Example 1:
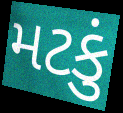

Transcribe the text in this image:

મટકું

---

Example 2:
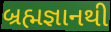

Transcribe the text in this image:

બ્રહ્મજ્ઞાનથી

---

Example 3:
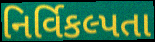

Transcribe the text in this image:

નિર્વિકલ્પતા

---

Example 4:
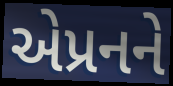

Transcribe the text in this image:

એપ્રનને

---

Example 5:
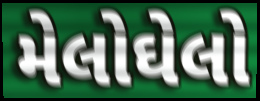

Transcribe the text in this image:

મેલોઘેલો